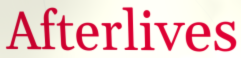
Afterlives